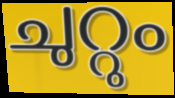
ചുറ്റും